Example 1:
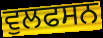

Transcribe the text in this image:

ਵੁਲਫਸਨ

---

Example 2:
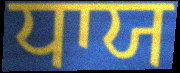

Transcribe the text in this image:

ਧਾਯ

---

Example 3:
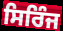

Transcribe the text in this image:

ਸਿਰਿੰਜ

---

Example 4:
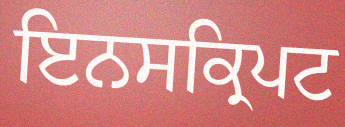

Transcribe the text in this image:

ਇਨਸਕ੍ਰਿਪਟ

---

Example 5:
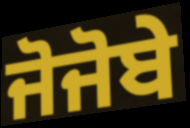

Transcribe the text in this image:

ਜੋਜੋਬੇ